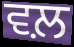
ਵਲ਼